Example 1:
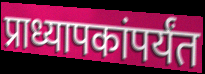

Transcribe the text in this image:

प्राध्यापकांपर्यंत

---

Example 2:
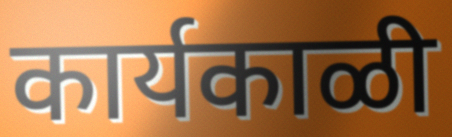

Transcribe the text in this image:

कार्यकाळी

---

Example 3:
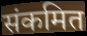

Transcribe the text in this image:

संकमित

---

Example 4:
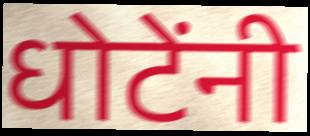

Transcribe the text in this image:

धोटेंनी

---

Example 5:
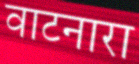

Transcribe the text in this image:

वाटनारा